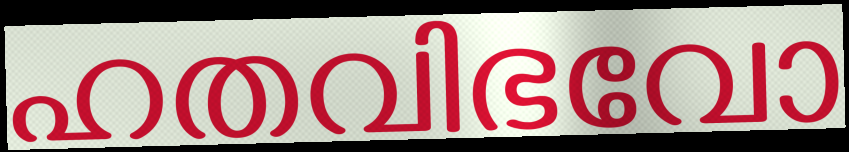
ഹതവിഭവോ